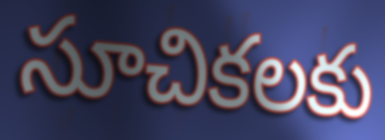
సూచికలకు